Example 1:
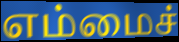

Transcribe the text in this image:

எம்மைச்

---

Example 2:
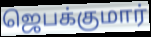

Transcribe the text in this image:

ஜெபக்குமார்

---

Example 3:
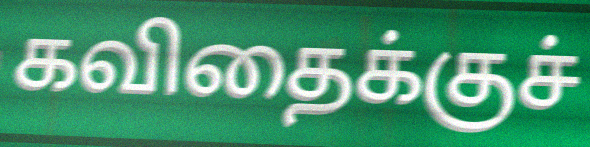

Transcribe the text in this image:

கவிதைக்குச்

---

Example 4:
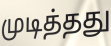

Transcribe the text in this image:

முடித்தது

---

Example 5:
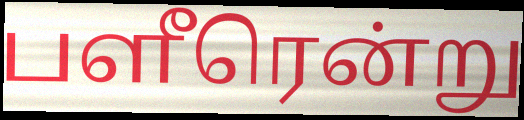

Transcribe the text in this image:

பளீரென்று